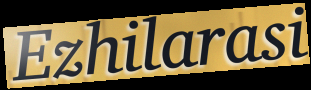
Ezhilarasi